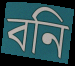
বনি